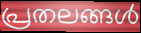
പ്രതലങ്ങൾ